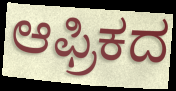
ಆಫ್ರಿಕದ